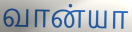
வான்யா